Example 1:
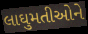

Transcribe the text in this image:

લાઘુમતીઓને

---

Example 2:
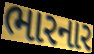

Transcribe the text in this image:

ભારનાર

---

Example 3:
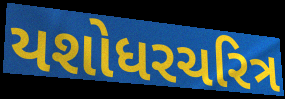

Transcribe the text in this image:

યશોધરચરિત્ર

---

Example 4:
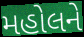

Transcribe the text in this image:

મહોલને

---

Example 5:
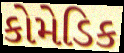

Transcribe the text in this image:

કોમેડિક